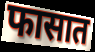
फासात